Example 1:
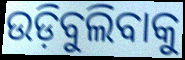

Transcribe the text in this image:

ଉଡ଼ିବୁଲିବାକୁ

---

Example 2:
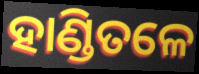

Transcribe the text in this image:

ହାଣ୍ଡିତଳେ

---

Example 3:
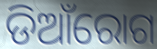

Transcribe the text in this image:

ଡିଆଁରୋଗ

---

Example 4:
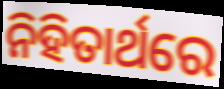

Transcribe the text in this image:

ନିହିତାର୍ଥରେ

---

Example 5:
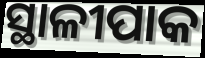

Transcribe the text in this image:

ସ୍ଥାଳୀପାକ